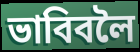
ভাবিবলৈ